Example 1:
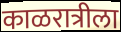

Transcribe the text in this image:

काळरात्रीला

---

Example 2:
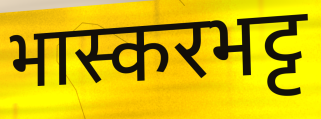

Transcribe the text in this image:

भास्करभट्ट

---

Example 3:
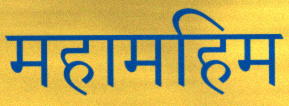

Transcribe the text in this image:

महामहिम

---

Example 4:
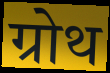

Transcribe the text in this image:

ग्रोथ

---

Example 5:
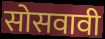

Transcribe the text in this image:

सोसवावी